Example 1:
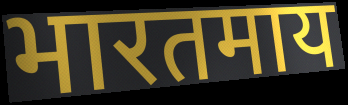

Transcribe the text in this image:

भारतमाय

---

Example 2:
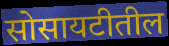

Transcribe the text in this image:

सोसायटीतील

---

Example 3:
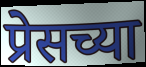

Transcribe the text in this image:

प्रेसच्या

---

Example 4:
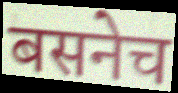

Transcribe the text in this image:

बसनेच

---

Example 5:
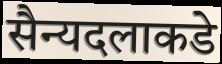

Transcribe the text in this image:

सैन्यदलाकडे